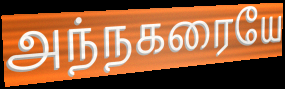
அந்நகரையே